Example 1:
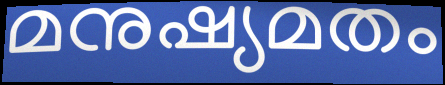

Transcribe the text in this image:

മനുഷ്യമതം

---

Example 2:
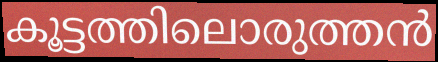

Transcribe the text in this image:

കൂട്ടത്തിലൊരുത്തൻ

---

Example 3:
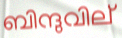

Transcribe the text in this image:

ബിന്ദുവില്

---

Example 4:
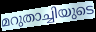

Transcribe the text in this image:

മറുതാച്ചിയുടെ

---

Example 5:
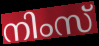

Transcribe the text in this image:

നിംസ്